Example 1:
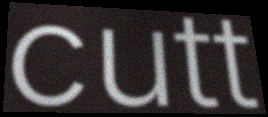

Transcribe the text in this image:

cutt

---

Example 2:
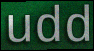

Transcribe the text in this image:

udd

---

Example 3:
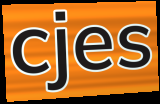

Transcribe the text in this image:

cjes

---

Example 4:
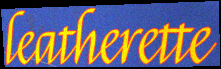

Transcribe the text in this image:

leatherette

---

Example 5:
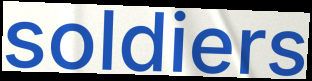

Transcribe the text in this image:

soldiers